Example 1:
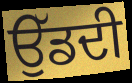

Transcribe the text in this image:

ਉੱਡਦੀ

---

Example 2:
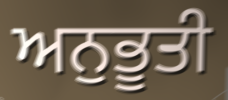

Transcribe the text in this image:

ਅਨੁਭੂਤੀ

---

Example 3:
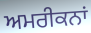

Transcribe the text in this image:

ਅਮਰੀਕਨਾਂ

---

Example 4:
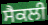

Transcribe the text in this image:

ਸੈਕਲੀ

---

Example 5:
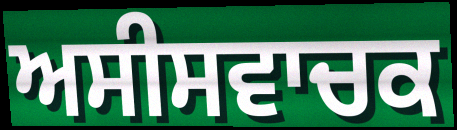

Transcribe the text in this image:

ਅਸੀਸਵਾਚਕ